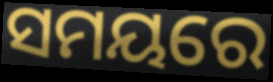
ସମୟରେ